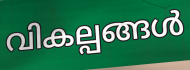
വികല്പങ്ങൾ